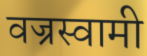
वज्रस्वामी